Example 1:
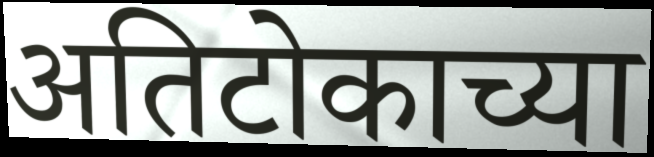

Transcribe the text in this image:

अतिटोकाच्या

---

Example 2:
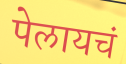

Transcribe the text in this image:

पेलायचं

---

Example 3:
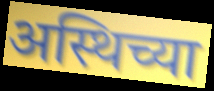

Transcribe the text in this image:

अस्थिच्या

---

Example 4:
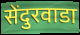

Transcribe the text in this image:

सेंदुरवाडा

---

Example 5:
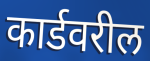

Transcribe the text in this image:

कार्डवरील